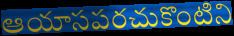
ఆయాసపరచుకొంటిని